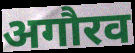
अगौरव